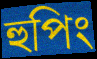
হুপিং